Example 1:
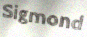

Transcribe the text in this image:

Sigmond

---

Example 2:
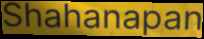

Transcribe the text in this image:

Shahanapan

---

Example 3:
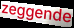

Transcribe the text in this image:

zeggende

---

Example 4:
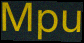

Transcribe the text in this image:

Mpu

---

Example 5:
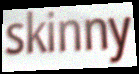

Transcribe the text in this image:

skinny